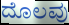
ದೊಲವು